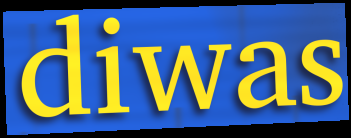
diwas